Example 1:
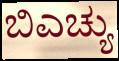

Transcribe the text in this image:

ಬಿಎಚ್ಯು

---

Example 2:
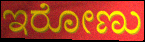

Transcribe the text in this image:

ಇರೋಣು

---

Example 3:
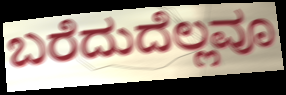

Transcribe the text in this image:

ಬರೆದುದೆಲ್ಲವೂ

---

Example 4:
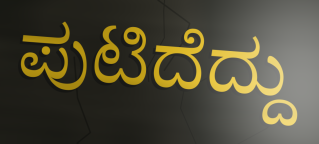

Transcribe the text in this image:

ಪುಟಿದೆದ್ದು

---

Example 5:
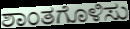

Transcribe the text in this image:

ಶಾಂತಗೊಳಿಸು